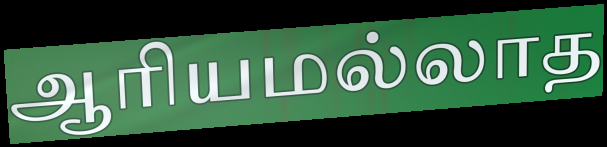
ஆரியமல்லாத